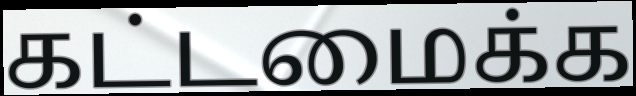
கட்டமைக்க